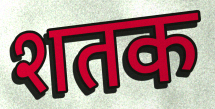
शतक